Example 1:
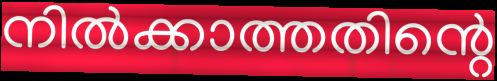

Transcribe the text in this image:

നിൽക്കാത്തതിന്റെ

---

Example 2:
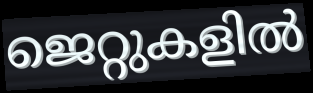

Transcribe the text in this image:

ജെറ്റുകളിൽ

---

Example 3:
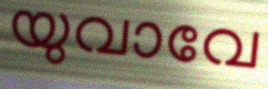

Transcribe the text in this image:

യുവാവേ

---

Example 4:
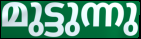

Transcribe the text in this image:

മുട്ടുന്നു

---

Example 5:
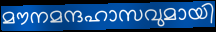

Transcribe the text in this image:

മൗനമന്ദഹാസവുമായി